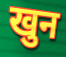
खुन